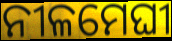
ନୀଳମେଘୀ